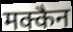
मक्कैन